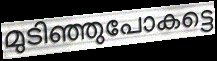
മുടിഞ്ഞുപോകട്ടെ